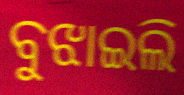
ବୁଝାଇଲି